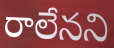
రాలేనని